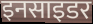
इनसाइडर